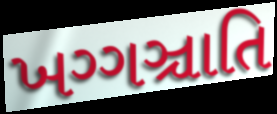
ખગ્ગઞ્ચાતિ